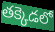
తక్కెడలో